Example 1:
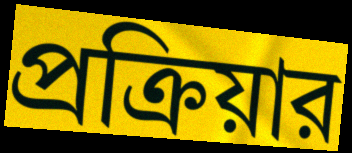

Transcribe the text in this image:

প্রক্রিয়ার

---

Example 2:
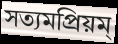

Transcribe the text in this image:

সত্যমপ্রিয়ম্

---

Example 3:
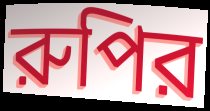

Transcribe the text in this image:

রুপির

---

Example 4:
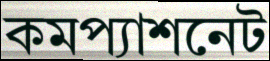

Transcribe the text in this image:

কমপ্যাশনেট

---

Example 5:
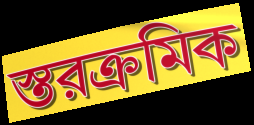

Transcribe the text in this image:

স্তরক্রমিক